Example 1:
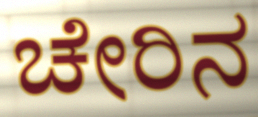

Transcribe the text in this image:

ಚೇರಿನ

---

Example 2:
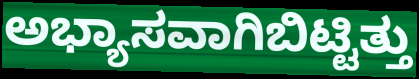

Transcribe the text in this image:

ಅಭ್ಯಾಸವಾಗಿಬಿಟ್ಟಿತ್ತು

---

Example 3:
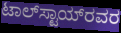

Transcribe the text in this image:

ಟಾಲ್‌ಸ್ಟಾಯ್‌ರವರ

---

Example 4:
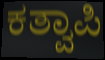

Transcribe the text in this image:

ಕತ್ವಾಪಿ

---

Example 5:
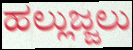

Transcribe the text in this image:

ಹಲ್ಲುಜ್ಜಲು